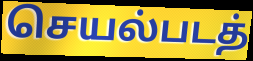
செயல்படத்